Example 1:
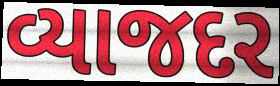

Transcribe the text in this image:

વ્યાજદર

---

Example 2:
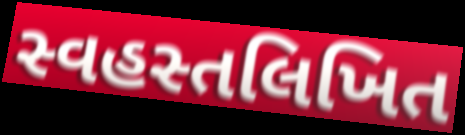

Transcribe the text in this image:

સ્વહસ્તલિખિત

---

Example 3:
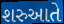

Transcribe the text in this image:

શરુઆતે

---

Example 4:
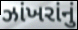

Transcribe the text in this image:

ઝાંખરાંનું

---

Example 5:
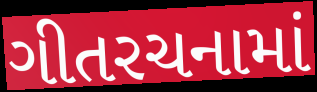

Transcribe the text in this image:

ગીતરચનામાં